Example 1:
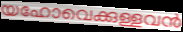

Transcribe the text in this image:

യഹോവെക്കുള്ളവൻ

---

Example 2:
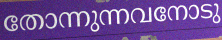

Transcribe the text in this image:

തോന്നുന്നവനോടു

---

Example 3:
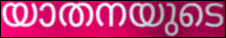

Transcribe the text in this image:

യാതനയുടെ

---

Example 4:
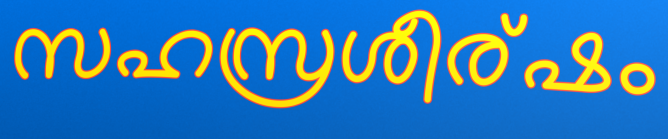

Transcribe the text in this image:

സഹസ്രശീര്ഷം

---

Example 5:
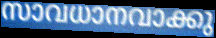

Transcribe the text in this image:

സാവധാനവാക്കു